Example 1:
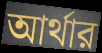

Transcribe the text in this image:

আর্থার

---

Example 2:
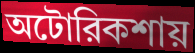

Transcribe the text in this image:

অটোরিকশায়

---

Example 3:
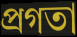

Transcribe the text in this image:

প্রগতা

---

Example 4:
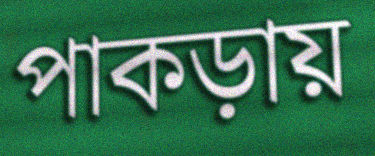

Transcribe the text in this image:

পাকড়ায়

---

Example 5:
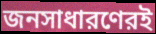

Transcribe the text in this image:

জনসাধারণেরই